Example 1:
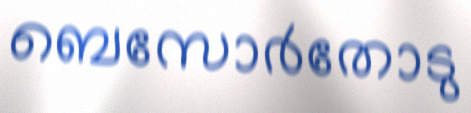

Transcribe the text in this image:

ബെസോർതോടു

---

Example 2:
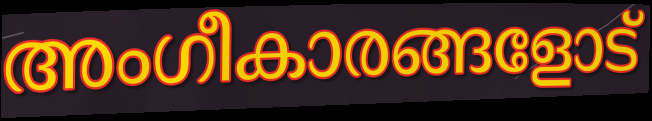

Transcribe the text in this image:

അംഗീകാരങ്ങളോട്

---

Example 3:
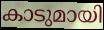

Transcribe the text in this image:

കാടുമായി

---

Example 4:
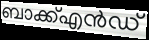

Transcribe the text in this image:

ബാക്ക്എൻഡ്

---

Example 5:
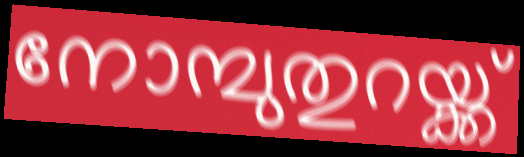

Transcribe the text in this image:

നോമ്പുതുറയ്ക്ക്